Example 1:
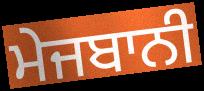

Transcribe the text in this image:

ਮੇਜਬਾਨੀ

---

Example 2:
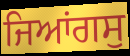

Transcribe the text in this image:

ਜਿਆਂਗਸੁ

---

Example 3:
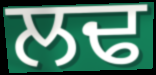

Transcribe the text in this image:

ਲਢ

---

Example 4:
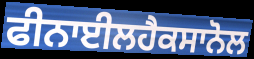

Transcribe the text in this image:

ਫੀਨਾਈਲਹੈਕਸਾਨੋਲ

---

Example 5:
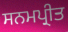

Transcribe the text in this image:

ਸਨਮਪ੍ਰੀਤ